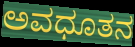
ಅವಧೂತನ